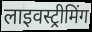
लाइवस्ट्रीमिंग